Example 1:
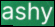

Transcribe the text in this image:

ashy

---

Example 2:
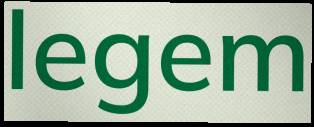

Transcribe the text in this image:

legem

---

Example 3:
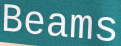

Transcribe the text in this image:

Beams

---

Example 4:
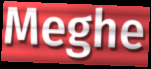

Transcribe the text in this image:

Meghe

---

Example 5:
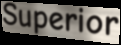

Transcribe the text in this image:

Superior